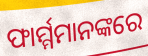
ଫାର୍ମ୍ମମାନଙ୍କରେ